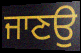
ਜਾਣਉ